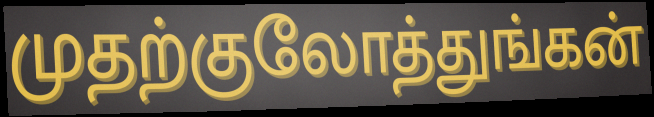
முதற்குலோத்துங்கன்